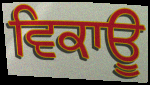
ਵਿਕਾਊ